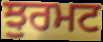
ਝੁਰਮਟ